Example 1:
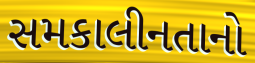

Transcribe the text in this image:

સમકાલીનતાનો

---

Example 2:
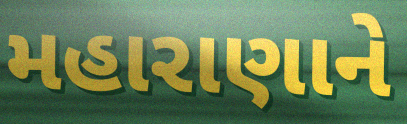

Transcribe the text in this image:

મહારાણાને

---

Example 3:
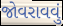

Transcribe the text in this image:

જોવરાવવું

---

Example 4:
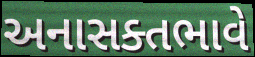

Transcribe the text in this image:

અનાસક્તભાવે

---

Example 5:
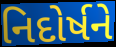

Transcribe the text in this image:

નિદોર્ષને